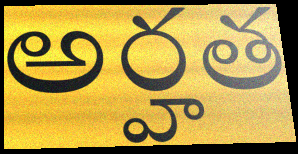
అర్హత